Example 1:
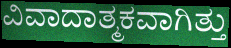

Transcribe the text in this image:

ವಿವಾದಾತ್ಮಕವಾಗಿತ್ತು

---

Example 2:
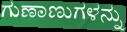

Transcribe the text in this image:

ಗುಣಾಣುಗಳನ್ನು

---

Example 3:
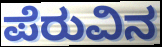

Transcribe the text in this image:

ಪೆರುವಿನ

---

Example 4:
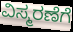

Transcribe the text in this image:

ವಿಸ್ಮರಣೆಗೆ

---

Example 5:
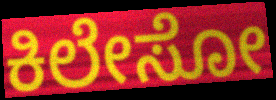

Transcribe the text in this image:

ಕಿಲೇಸೋ